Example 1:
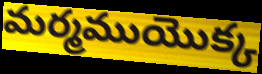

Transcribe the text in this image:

మర్మముయొక్క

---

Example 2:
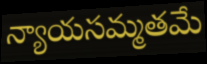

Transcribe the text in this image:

న్యాయసమ్మతమే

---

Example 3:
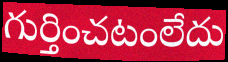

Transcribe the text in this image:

గుర్తించటంలేదు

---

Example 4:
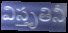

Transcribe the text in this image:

విస్తృతినీ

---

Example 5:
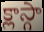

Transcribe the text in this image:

క్లాస్గా